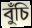
বুঁচি